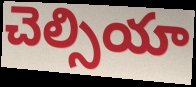
చెల్సియా